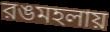
রঙমহলায়